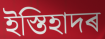
ইস্তিহাদৰ